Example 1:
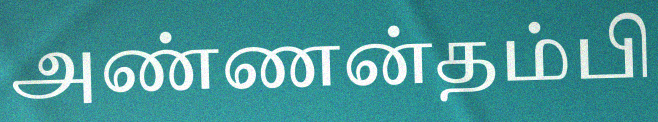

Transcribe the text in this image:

அண்ணன்தம்பி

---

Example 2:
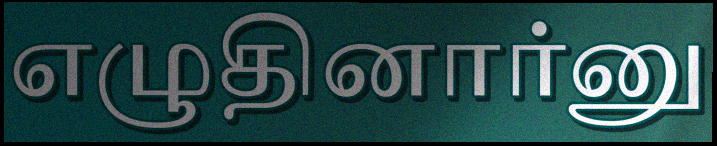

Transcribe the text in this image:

எழுதினார்னு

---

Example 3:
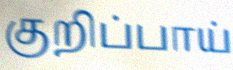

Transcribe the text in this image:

குறிப்பாய்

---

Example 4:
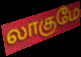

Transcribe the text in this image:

லாகுமே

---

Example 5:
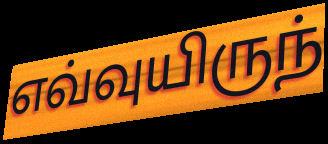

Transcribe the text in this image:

எவ்வுயிருந்